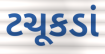
ટચૂકડાં